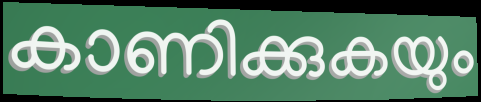
കാണിക്കുകയും